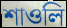
শাওলি